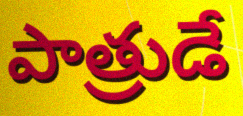
పాత్రుడే